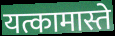
यत्कामास्ते